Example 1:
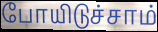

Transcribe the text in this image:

போயிடுச்சாம்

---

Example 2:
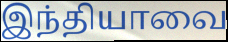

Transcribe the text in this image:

இந்தியாவை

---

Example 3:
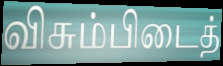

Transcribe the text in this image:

விசும்பிடைத்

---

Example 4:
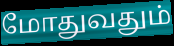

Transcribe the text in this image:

மோதுவதும்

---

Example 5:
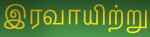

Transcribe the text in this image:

இரவாயிற்று